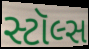
સ્ટૉલ્સ